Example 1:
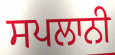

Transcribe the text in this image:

ਸਪਲਾਨੀ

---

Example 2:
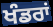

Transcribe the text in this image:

ਖੰਡਰਾਂ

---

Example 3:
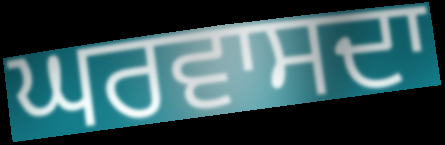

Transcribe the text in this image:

ਘਰਵਾਸਦਾ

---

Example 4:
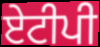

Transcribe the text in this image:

ਏਟੀਪੀ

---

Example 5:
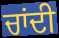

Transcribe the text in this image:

ਚਾਂਦੀ